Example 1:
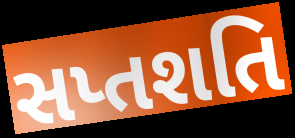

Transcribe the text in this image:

સપ્તશતિ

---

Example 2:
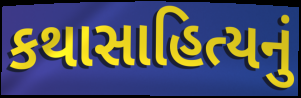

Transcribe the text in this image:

કથાસાહિત્યનું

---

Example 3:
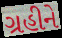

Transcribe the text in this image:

ગ્રહીને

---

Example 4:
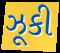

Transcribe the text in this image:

ઝૂકી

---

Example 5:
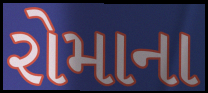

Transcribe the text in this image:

રોમાના